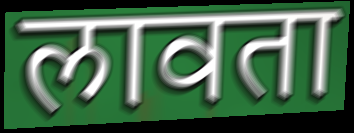
लावता